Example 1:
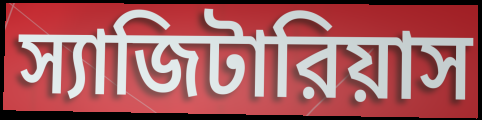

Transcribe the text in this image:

স্যাজিটারিয়াস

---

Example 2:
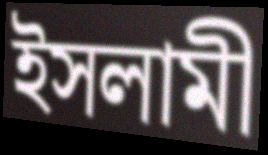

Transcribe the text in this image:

ইসলামী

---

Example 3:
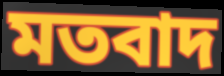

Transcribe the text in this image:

মতবাদ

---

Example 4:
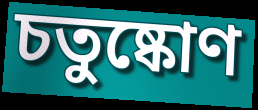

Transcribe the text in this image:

চতুষ্কোণ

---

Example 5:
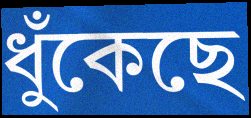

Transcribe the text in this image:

ধুঁকেছে